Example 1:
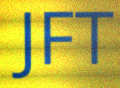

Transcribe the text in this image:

JFT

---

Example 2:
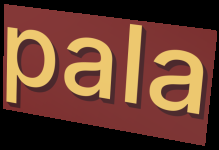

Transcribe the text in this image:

pala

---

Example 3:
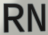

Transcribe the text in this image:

RN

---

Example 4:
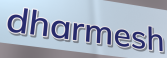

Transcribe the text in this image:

dharmesh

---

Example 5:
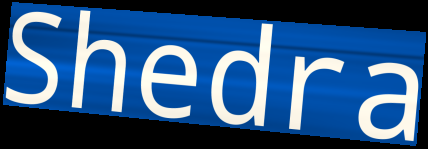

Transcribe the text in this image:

Shedra